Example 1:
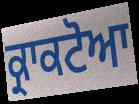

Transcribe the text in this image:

ਕ੍ਰਾਕਟੋਆ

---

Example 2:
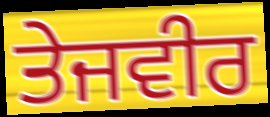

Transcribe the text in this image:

ਤੇਜਵੀਰ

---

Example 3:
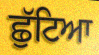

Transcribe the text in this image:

ਛੁੱਟਿਆ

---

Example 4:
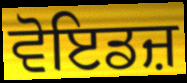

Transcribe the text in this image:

ਵੋਇਡਜ਼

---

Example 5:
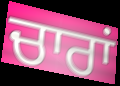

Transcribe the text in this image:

ਚਾਰਾਂ